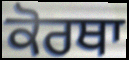
ਕੋਰਥਾ